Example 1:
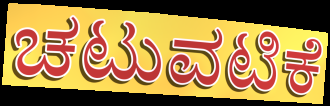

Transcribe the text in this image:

ಚಟುವಟಿಕೆ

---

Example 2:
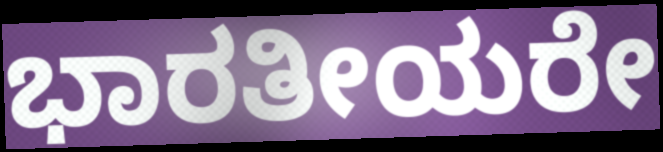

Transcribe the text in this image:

ಭಾರತೀಯರೇ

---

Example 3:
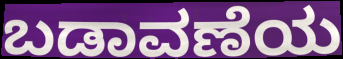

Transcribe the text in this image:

ಬಡಾವಣೆಯ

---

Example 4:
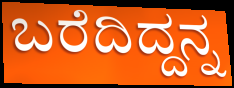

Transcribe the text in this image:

ಬರೆದಿದ್ದನ್ನ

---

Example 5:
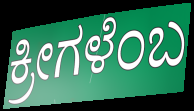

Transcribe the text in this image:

ಕ್ರೀಗಳೆಂಬ